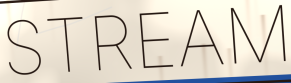
STREAM